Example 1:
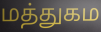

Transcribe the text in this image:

மத்துகம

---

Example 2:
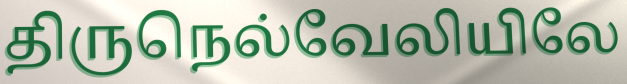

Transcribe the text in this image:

திருநெல்வேலியிலே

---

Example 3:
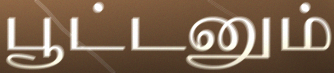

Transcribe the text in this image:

பூட்டனும்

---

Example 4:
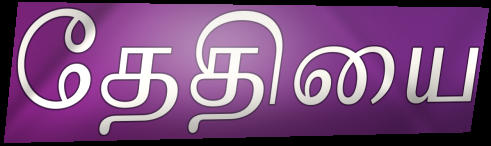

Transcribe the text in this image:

தேதியை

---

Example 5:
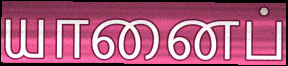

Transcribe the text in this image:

யானைப்